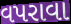
વપરાવા